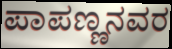
ಪಾಪಣ್ಣನವರ